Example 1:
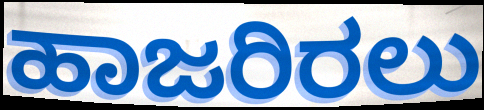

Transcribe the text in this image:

ಹಾಜರಿರಲು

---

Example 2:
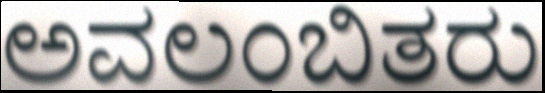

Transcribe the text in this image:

ಅವಲಂಬಿತರು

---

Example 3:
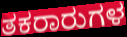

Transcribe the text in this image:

ತಕರಾರುಗಳ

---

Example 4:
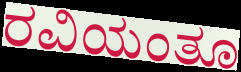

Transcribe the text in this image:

ರವಿಯಂತೂ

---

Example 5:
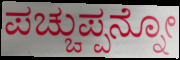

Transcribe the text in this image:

ಪಚ್ಚುಪ್ಪನ್ನೋ